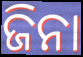
ଜିନା